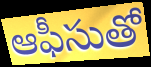
ఆఫీసుతో